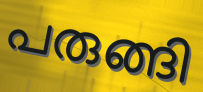
പരുങ്ങി